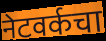
नेटवर्कचा